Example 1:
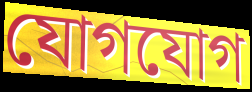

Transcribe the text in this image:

যোগযোগ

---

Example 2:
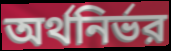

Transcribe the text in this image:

অর্থনির্ভর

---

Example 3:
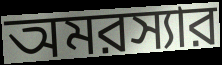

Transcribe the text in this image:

অমরস্যার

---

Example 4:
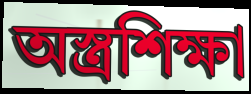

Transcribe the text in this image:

অস্ত্রশিক্ষা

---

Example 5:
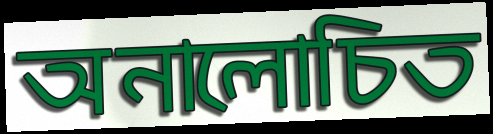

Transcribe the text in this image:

অনালোচিত